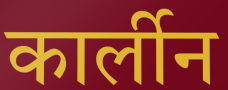
कार्लीन